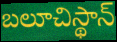
బలూచిస్థాన్